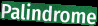
Palindrome